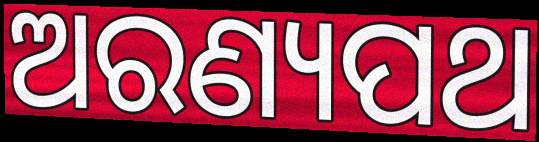
ଅରଣ୍ୟପଥ